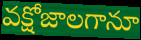
వక్షోజాలగానూ